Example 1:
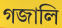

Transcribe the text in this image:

গজালি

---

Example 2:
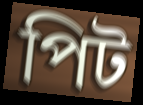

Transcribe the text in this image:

পিট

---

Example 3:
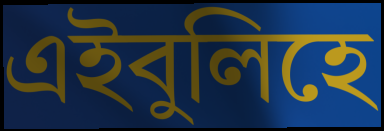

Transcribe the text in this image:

এইবুলিহে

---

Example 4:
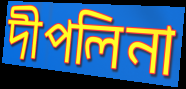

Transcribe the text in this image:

দীপলিনা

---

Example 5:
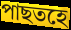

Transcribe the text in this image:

পাছতহে